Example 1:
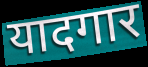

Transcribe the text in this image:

यादगार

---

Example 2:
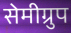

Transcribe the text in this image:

सेमीग्रुप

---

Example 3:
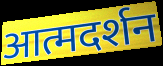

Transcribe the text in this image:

आत्मदर्शन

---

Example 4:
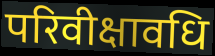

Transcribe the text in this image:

परिवीक्षावधि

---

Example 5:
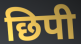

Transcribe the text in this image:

छिपी